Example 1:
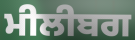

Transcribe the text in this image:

ਮੀਲੀਬਗ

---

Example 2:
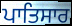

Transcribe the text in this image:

ਪਾਤਿਸਾਰ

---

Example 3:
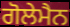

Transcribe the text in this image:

ਗੋਲੇਮੈਨ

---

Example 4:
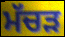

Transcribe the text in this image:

ਮੱਚੜ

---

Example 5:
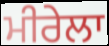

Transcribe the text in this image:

ਮੀਰੇਲਾ